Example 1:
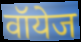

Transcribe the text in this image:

वॉयेज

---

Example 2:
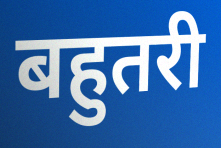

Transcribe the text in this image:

बहुतरी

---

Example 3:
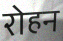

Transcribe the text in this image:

रोहन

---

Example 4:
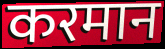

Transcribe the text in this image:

करमान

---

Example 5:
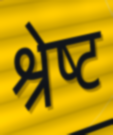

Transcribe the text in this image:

श्रेष्‍ट